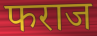
फराज